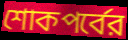
শোকপর্বের